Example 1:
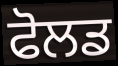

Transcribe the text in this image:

ਫੋਲਡ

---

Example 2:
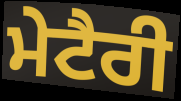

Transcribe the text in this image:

ਮੇਟੈਰੀ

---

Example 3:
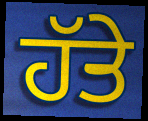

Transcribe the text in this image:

ਹੱਤੇ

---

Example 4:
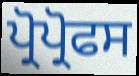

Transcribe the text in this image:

ਪ੍ਰੋਪ੍ਰੋਫਸ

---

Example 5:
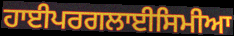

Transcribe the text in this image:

ਹਾਈਪਰਗਲਾਈਸਿਮੀਆ